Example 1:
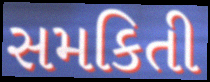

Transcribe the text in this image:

સમકિતી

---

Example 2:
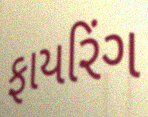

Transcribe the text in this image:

ફાયરિંગ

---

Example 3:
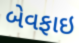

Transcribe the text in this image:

બેવફાઇ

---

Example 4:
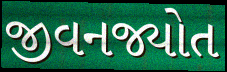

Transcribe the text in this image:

જીવનજ્યોત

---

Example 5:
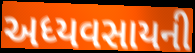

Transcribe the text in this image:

અધ્યવસાયની